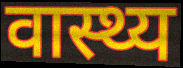
वास्थ्य